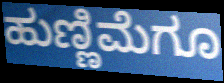
ಹುಣ್ಣಿಮೆಗೂ